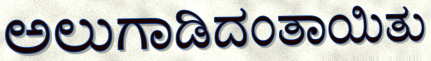
ಅಲುಗಾಡಿದಂತಾಯಿತು